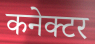
कनेक्टर